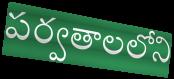
పర్వతాలలోని